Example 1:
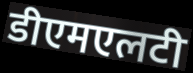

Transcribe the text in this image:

डीएमएलटी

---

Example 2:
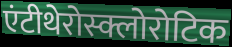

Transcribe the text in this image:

एंटीथेरोस्क्लोरोटिक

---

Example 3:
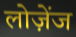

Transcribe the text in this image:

लोज़ेंज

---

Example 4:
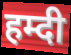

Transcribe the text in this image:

हम्दी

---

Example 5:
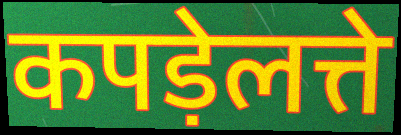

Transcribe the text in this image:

कपड़ेलत्ते